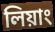
লিয়াং